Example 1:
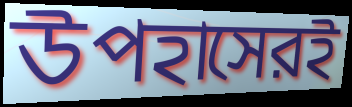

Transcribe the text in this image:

উপহাসেরই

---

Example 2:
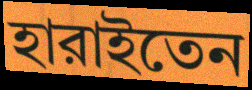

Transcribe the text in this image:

হারাইতেন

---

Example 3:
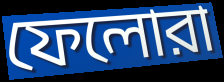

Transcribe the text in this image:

ফেলোরা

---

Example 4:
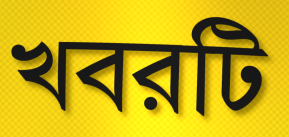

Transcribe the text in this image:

খবরটি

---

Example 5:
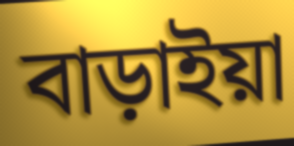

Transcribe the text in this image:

বাড়াইয়া